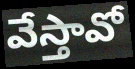
వేస్తావో